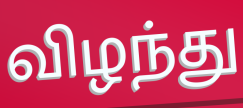
விழந்து